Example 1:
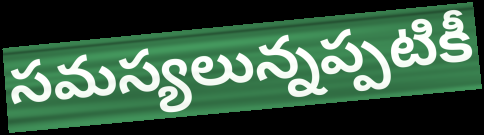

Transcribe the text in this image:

సమస్యలున్నప్పటికీ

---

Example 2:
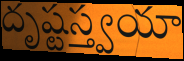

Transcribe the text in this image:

దృష్టస్త్వయా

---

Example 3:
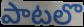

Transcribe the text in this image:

పాటలొ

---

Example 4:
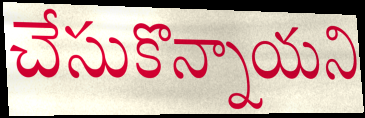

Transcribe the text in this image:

చేసుకొన్నాయని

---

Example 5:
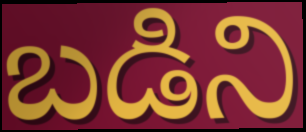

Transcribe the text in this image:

బడిని